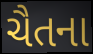
ચૈતના